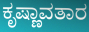
ಕೃಷ್ಣಾವತಾರ